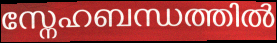
സ്നേഹബന്ധത്തിൽ